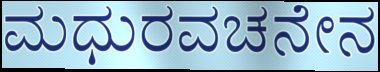
ಮಧುರವಚನೇನ